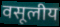
वसूलीय